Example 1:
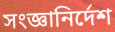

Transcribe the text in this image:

সংজ্ঞানির্দেশ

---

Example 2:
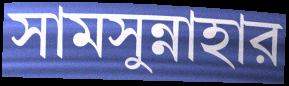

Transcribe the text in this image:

সামসুন্নাহার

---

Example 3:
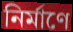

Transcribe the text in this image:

নির্মাণে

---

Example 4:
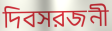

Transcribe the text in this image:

দিবসরজনী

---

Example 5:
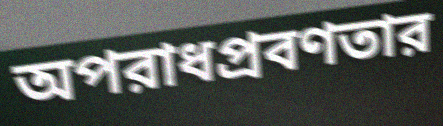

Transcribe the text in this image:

অপরাধপ্রবণতার